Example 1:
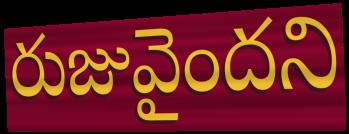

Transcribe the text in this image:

రుజువైందని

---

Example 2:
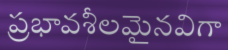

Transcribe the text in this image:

ప్రభావశీలమైనవిగా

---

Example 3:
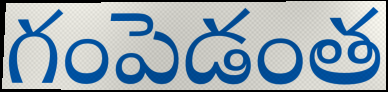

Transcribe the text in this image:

గంపెడంత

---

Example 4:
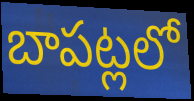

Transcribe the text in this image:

బాపట్లలో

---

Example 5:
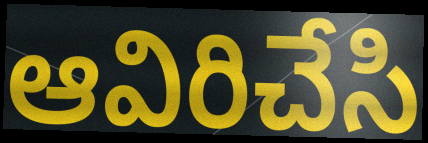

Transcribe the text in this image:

ఆవిరిచేసి